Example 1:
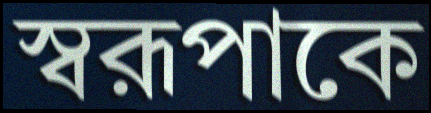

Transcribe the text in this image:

স্বরূপাকে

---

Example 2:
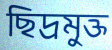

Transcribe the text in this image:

ছিদ্রমুক্ত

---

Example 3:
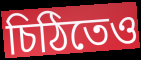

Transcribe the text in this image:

চিঠিতেও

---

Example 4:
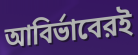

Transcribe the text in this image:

আবির্ভাবেরই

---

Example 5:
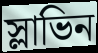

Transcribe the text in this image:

স্লাভিন